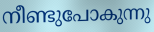
നീണ്ടുപോകുന്നു